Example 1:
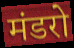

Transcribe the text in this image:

मंडरो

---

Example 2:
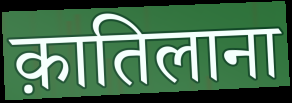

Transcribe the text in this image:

क़ातिलाना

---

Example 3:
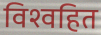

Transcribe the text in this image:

विश्वहित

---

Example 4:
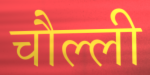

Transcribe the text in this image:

चौल्ली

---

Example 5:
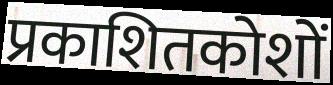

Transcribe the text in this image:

प्रकाशितकोशों